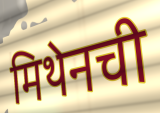
मिथेनची